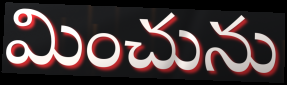
మించును